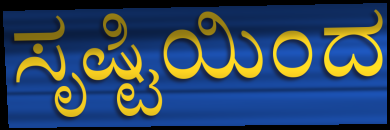
ಸೃಷ್ಟಿಯಿಂದ